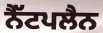
ਨੈੱਟਪਲੈਨ